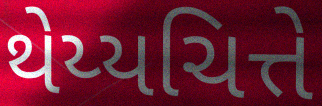
થેય્યચિત્તે